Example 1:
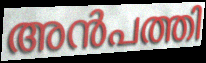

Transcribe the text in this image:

അൻപത്തി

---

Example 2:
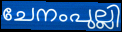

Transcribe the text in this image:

ചേനംപുല്ലി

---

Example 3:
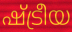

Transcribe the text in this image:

ഷ്ട്രീയ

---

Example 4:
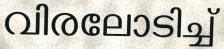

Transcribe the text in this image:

വിരലോടിച്ച്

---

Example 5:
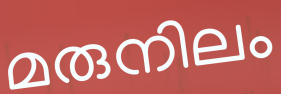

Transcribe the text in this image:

മരുനിലം